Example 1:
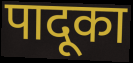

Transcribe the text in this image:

पादूका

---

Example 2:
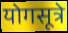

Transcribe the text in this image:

योगसूत्रे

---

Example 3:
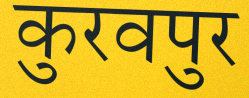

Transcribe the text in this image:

कुरवपुर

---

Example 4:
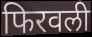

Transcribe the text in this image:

फिरवली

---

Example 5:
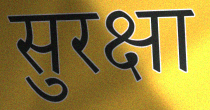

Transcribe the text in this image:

सुरक्षा